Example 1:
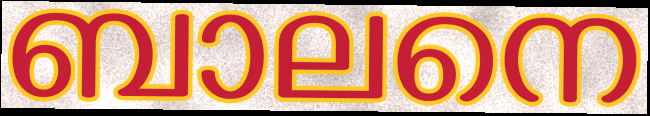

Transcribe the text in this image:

ബാലനെ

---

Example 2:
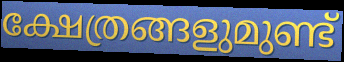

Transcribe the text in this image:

ക്ഷേത്രങ്ങളുമുണ്ട്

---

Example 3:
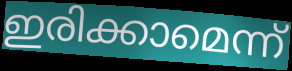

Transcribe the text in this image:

ഇരിക്കാമെന്ന്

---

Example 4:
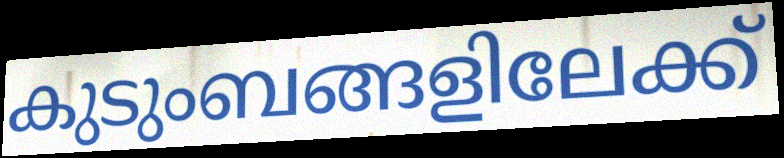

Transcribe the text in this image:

കുടുംബങ്ങളിലേക്ക്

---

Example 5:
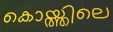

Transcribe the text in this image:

കൊയ്ത്തിലെ